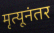
मृत्यूनंतर